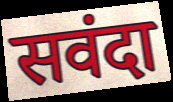
सवंदा